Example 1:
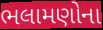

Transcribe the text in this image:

ભલામણોના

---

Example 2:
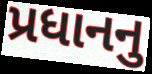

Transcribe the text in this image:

પ્રધાનનુ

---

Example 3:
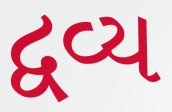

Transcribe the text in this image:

દ્વવ્ય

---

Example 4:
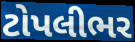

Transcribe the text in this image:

ટોપલીભર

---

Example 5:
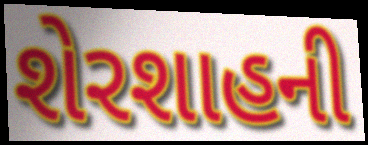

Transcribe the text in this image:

શેરશાહની